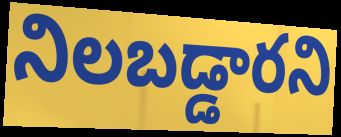
నిలబడ్డారని